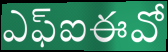
ఎఫ్ఐఈవో